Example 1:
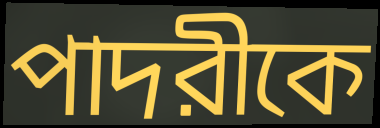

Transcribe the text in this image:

পাদরীকে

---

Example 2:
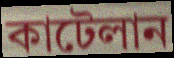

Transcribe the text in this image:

কাটেলান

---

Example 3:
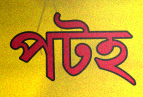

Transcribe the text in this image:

পটহ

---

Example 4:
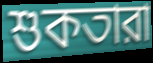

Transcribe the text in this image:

শুকতারা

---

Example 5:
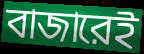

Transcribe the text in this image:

বাজারেই